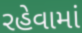
રહેવામાં